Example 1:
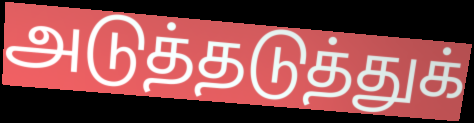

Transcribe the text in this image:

அடுத்தடுத்துக்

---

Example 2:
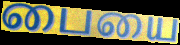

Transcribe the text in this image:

பையை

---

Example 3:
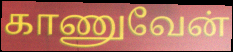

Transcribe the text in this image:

காணுவேன்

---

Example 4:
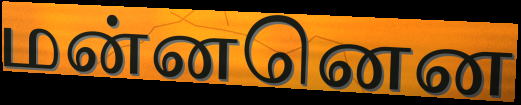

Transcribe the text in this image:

மன்னனென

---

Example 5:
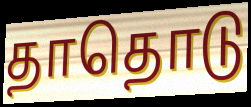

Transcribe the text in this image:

தாதொடு